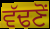
ਵੱਢਣੋਂ